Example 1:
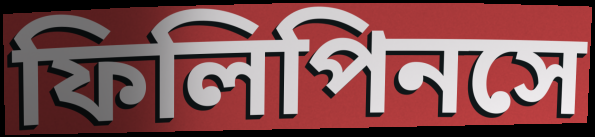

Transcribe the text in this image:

ফিলিপিনসে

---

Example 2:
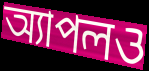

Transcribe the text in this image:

অ্যাপলও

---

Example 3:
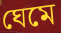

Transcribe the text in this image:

ঘেমে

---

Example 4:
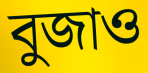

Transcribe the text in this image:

বুজাও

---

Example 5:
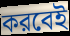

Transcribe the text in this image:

করবেই